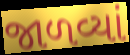
જાળવ્યાં